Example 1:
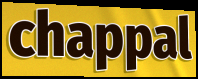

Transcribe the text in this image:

chappal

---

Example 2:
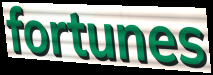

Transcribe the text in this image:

fortunes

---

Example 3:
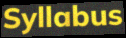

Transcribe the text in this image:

Syllabus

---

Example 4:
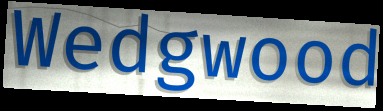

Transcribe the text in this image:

Wedgwood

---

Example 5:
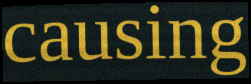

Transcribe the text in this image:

causing